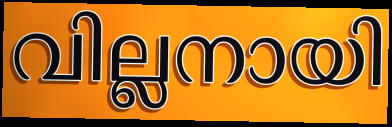
വില്ലനായി